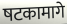
षटकामागे